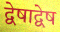
द्वेषाद्वेष